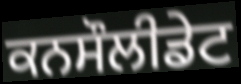
ਕਨਸੌਲੀਡੇਟ